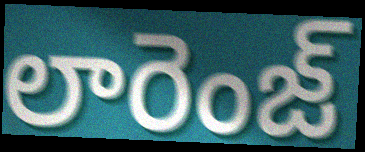
లారెంజ్